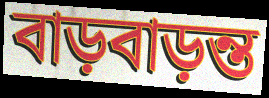
বাড়বাড়ন্ত